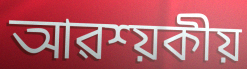
আৱশ্য়কীয়